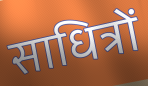
साधित्रों